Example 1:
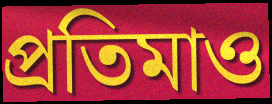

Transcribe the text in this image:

প্রতিমাও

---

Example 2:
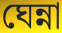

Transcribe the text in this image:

ঘেন্না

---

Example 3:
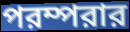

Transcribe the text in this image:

পরম্পরার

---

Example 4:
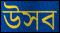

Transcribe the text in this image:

উসব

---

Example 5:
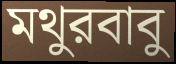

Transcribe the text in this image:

মথুরবাবু